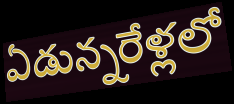
ఏడున్నరేళ్లలో